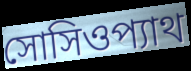
সোসিওপ্যাথ